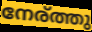
നേര്ത്തു